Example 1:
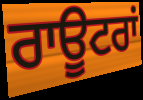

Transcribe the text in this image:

ਰਾਊਟਰਾਂ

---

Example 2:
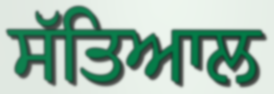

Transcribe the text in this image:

ਸੱਤਿਆਲ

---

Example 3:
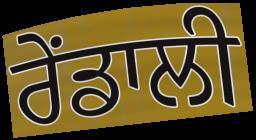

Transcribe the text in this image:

ਰੇਂਡਾਲੀ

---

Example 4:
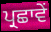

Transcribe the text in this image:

ਪ੍ਰਛਾਵੇਂ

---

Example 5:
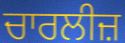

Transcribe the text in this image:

ਚਾਰਲੀਜ਼